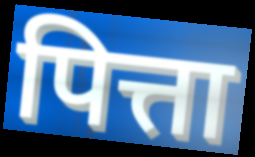
पित्ता